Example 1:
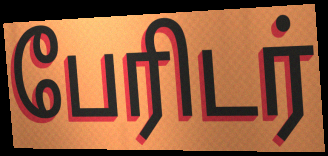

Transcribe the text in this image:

பேரிடர்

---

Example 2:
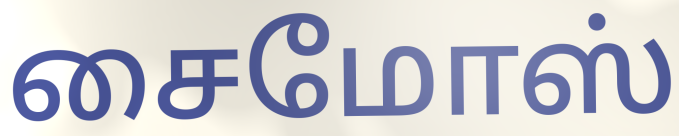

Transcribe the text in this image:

சைமோஸ்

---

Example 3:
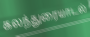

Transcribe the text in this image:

கலந்துரையாடல்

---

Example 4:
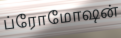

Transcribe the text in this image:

ப்ரோமோஷன்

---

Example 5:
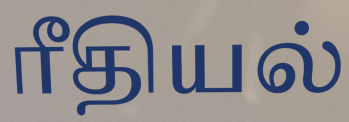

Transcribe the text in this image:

ரீதியல்